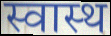
स्वास्थ